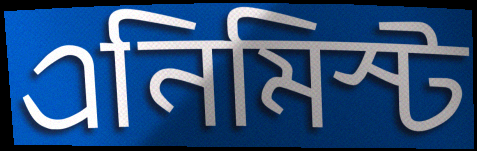
এনিমিস্ট